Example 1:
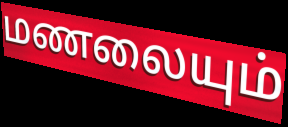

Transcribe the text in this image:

மணலையும்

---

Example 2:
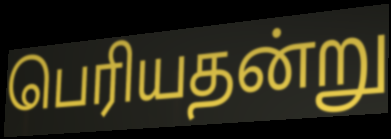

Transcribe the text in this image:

பெரியதன்று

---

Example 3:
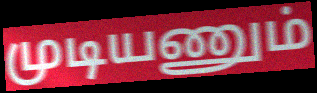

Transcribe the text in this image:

முடியணும்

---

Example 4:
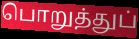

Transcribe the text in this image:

பொறுத்துப்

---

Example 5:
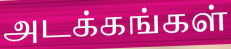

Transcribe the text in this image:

அடக்கங்கள்